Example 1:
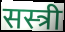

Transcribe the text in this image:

सस्त्री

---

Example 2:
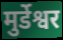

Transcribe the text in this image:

मुर्डेश्वर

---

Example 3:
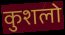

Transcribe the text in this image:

कुशलो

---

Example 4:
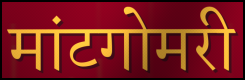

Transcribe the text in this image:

मांटगोमरी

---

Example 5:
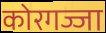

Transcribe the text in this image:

कोरगज्जा